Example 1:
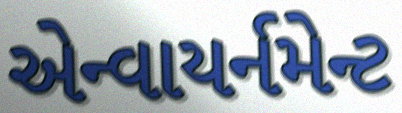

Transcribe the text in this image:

એન્વાયર્નમેન્ટ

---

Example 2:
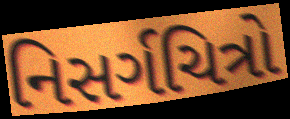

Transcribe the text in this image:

નિસર્ગચિત્રો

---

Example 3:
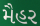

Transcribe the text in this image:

મૈહર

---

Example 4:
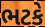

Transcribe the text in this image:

ભટકે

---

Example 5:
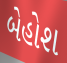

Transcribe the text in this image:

બેહોશ